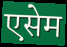
एसेम